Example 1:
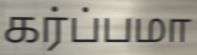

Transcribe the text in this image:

கர்ப்பமா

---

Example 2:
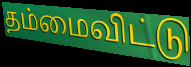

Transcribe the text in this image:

தம்மைவிட்டு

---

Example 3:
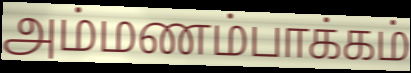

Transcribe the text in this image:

அம்மணம்பாக்கம்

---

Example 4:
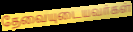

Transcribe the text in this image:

தேவையுடையவர்கள்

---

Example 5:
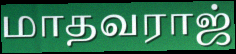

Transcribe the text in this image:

மாதவராஜ்